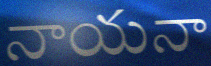
నాయనా